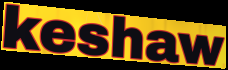
keshaw